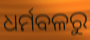
ଧର୍ମବଳରୁ